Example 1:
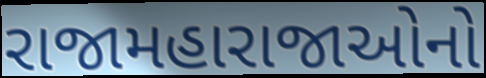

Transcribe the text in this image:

રાજામહારાજાઓનો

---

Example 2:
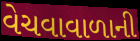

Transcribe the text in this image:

વેચવાવાળાની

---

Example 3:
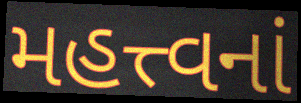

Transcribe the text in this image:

મહત્ત્વનાં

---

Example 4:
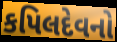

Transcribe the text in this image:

કપિલદેવનો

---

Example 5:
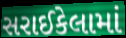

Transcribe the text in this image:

સરાઈકેલામાં